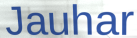
Jauhar